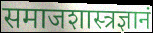
समाजशास्त्रज्ञानं